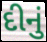
દીનું